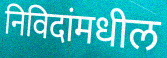
निविदांमधील